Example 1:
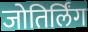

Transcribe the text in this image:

जोतिर्लिंग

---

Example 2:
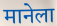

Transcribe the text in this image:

मानेला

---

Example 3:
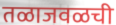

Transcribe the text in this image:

तळाजवळची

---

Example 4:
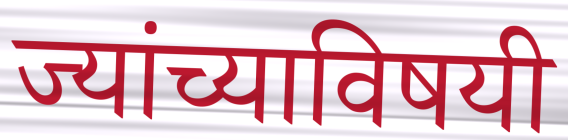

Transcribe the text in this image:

ज्यांच्याविषयी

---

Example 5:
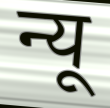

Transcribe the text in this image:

न्यू